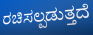
ರಚಿಸಲ್ಪಡುತ್ತದೆ